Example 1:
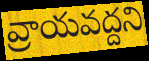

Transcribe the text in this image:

వ్రాయవద్దని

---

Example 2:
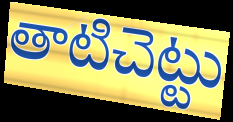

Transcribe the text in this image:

తాటిచెట్టు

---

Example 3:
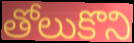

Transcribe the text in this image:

తోలుకొని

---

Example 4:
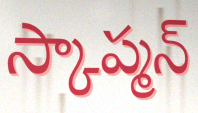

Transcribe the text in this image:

స్కాప్మన్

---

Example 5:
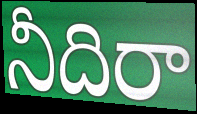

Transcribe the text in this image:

నీదిరా